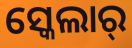
ସ୍କେଲାର୍